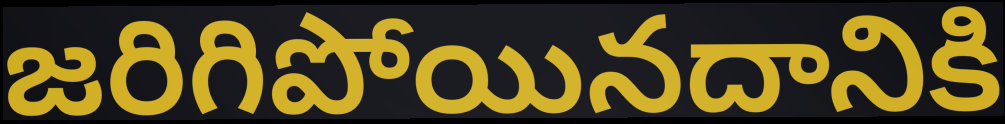
జరిగిపోయినదానికి